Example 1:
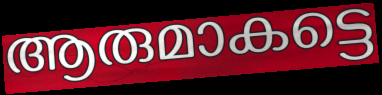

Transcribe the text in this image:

ആരുമാകട്ടെ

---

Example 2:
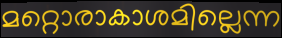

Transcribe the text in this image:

മറ്റൊരാകാശമില്ലെന്ന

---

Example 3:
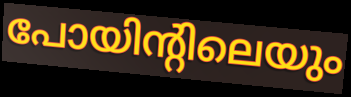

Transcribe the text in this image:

പോയിന്റിലെയും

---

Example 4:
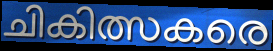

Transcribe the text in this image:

ചികിത്സകരെ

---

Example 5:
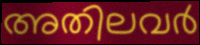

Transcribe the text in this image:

അതിലവർ